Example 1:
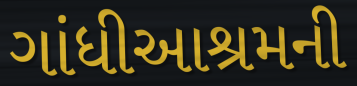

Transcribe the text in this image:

ગાંધીઆશ્રમની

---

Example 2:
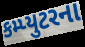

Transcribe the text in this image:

કમ્પ્યુટરના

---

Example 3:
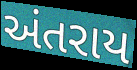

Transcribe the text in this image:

અંતરાય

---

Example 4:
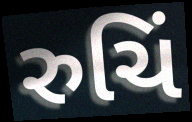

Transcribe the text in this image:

રુચિં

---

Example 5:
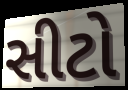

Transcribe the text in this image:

સીટો